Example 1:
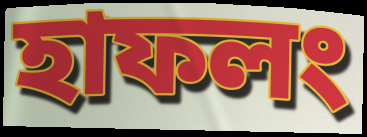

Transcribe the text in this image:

হাফলং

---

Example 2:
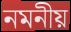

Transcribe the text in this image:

নমনীয়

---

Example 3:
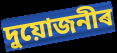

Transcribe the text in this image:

দুয়োজনীৰ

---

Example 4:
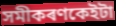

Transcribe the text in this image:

সমীকৰণকেইটা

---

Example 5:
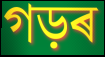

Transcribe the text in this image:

গড়ৰ